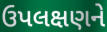
ઉપલક્ષણને